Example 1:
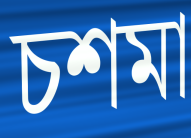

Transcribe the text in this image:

চশমা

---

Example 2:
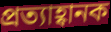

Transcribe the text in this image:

প্ৰত্যাহ্বানক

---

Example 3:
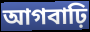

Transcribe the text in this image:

আগবাঢ়ি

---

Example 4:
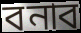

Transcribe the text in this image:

বনাব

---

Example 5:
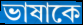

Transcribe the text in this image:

ভাষাকে